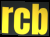
rcb